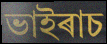
ভাইৰাচ